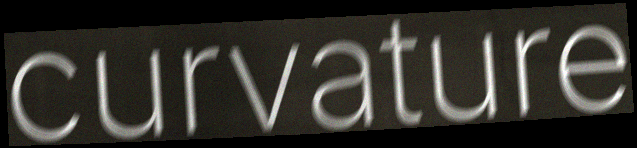
curvature